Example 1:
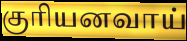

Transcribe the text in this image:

குரியனவாய்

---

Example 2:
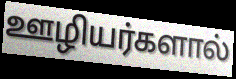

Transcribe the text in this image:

ஊழியர்களால்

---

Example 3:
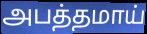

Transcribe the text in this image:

அபத்தமாய்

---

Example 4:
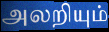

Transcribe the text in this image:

அலறியும்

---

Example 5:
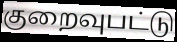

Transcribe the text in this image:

குறைவுபட்டு